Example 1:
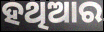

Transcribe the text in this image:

ହଥିଆର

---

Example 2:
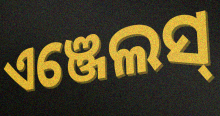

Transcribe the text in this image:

ଏଞ୍ଜେଲସ୍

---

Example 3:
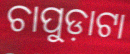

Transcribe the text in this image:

ଚାପୁଡ଼ାଟା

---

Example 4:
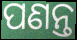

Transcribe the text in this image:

ପଣନ୍ତ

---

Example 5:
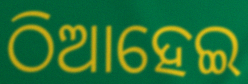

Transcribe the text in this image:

ଠିଆହେଇ